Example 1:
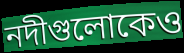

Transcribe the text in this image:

নদীগুলোকেও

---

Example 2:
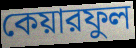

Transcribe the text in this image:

কেয়ারফুল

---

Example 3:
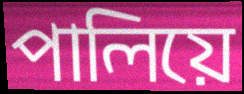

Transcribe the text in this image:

পালিয়ে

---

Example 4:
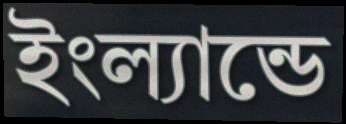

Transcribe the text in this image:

ইংল্যান্ডে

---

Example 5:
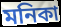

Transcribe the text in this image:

মনিকা